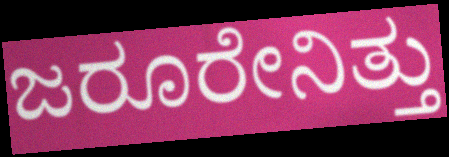
ಜರೂರೇನಿತ್ತು